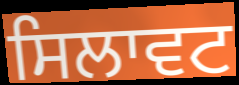
ਸਿਲਾਵਟ